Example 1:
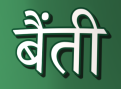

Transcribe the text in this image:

बैंती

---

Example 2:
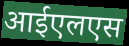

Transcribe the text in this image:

आईएलएस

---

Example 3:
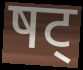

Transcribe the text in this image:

षट्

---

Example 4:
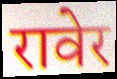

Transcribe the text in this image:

रावेर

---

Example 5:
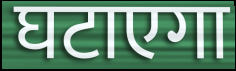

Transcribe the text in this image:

घटाएगा